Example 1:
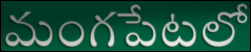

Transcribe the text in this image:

మంగపేటలో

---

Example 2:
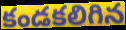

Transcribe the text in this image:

కండకలిగిన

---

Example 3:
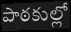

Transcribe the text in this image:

పాఠకుల్లో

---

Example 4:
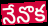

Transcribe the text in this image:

నేనొక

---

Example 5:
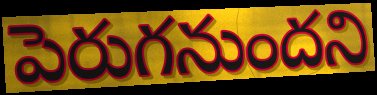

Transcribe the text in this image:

పెరుగనుందని